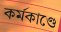
কর্মকাণ্ডে